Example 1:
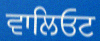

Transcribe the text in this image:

ਵਾਲਿਓਟ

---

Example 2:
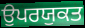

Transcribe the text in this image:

ਉਪਰਯੁਕਤ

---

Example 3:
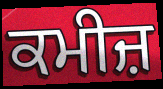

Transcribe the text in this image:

ਕਮੀਜ਼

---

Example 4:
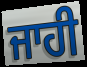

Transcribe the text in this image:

ਜਾਹੀ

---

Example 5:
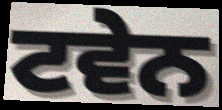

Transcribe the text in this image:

ਟਵੇਨ